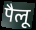
पैलू